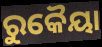
ରୁକୈୟା